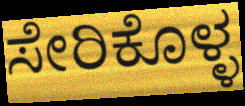
ಸೇರಿಕೊಳ್ಳ